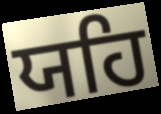
ਯਹਿ